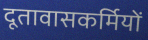
दूतावासकर्मियों